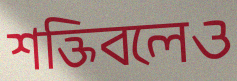
শক্তিবলেও